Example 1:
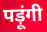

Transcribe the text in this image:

पड़ूंगी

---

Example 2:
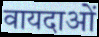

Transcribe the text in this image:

वायदाओं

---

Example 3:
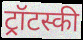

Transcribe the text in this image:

ट्रॉटस्की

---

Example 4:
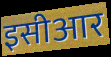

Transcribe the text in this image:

इसीआर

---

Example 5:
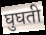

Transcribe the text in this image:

घुघती